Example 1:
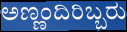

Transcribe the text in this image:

ಅಣ್ಣಂದಿರಿಬ್ಬರು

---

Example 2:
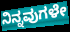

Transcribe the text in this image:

ನಿನ್ನವುಗಳೇ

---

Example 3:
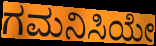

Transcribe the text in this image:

ಗಮನಿಸಿಯೇ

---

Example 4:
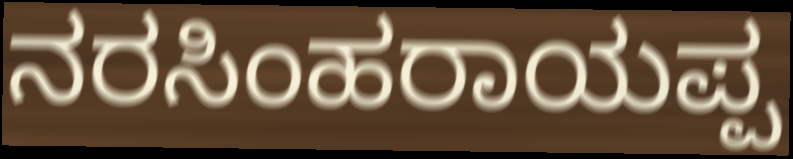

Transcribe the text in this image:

ನರಸಿಂಹರಾಯಪ್ಪ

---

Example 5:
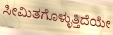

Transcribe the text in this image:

ಸೀಮಿತಗೊಳ್ಳುತ್ತಿದೆಯೇ